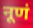
नूणं